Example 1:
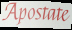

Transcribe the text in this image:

Apostate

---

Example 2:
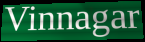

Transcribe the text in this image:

Vinnagar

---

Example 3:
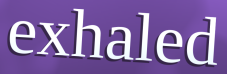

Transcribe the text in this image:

exhaled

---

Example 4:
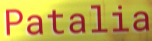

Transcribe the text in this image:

Patalia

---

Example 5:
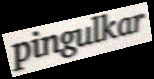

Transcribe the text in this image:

pingulkar